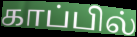
காப்பில்